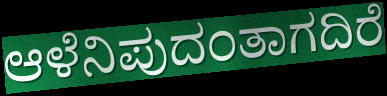
ಆಳೆನಿಪುದಂತಾಗದಿರೆ